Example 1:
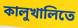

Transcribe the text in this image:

কালুখালিতে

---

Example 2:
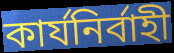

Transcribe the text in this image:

কার্যনির্বাহী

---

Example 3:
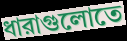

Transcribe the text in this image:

ধারাগুলোতে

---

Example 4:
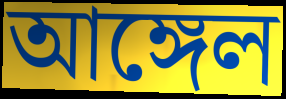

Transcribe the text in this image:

আঙ্গেল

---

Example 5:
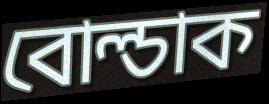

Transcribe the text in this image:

বোল্ডাক